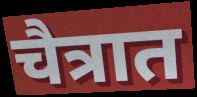
चैत्रात